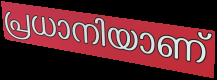
പ്രധാനിയാണ്